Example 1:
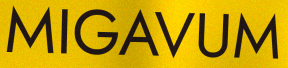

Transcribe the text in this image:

MIGAVUM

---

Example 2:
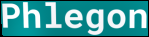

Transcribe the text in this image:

Phlegon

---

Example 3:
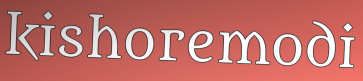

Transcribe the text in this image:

kishoremodi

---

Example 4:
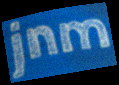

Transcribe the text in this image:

jnm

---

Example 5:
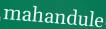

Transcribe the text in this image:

mahandule